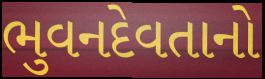
ભુવનદેવતાનો